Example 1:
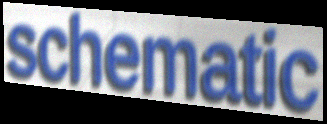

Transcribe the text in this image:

schematic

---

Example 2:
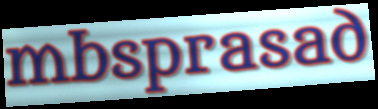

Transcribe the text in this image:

mbsprasad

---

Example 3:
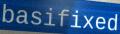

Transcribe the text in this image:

basifixed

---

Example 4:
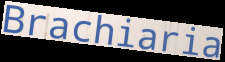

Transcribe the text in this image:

Brachiaria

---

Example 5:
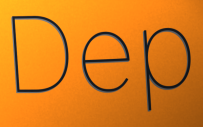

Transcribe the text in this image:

Dep